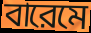
বারেমে